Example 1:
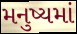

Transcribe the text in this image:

મનુષ્યમાં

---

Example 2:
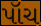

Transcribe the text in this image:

પૉચ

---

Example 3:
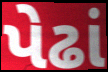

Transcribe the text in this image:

પેઢાં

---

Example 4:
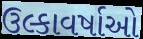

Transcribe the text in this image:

ઉલ્કાવર્ષાઓ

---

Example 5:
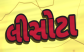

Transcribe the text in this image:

લીસોટા